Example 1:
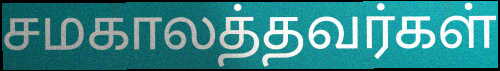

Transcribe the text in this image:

சமகாலத்தவர்கள்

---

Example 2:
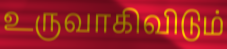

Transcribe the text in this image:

உருவாகிவிடும்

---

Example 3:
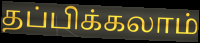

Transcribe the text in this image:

தப்பிக்கலாம்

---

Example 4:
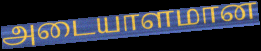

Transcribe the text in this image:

அடையாளமான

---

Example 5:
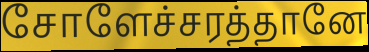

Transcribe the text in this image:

சோளேச்சரத்தானே